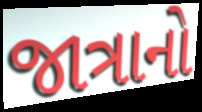
જાત્રાનો